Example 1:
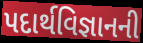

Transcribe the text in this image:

પદાર્થવિજ્ઞાનની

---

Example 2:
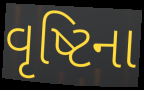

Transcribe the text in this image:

વૃષ્ટિના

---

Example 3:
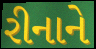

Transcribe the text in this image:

રીનાને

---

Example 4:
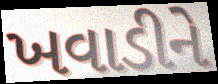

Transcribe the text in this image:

ખવાડીને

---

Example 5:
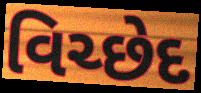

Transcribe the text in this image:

વિચ્છેદ